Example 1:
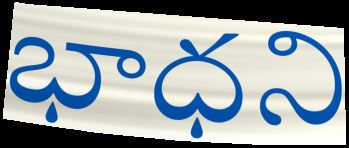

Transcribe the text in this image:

భాధని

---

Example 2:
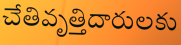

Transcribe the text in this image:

చేతివృత్తిదారులకు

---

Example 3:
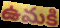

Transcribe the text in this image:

ఉమకి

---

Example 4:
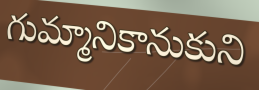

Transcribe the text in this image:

గుమ్మానికానుకుని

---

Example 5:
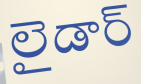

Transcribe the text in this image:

లైడార్